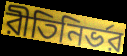
রীতিনির্ভর